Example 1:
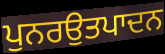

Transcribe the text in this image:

ਪੁਨਰਉਤਪਾਦਨ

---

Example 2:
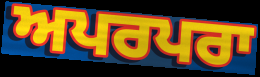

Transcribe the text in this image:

ਅਪਰਪਰਾ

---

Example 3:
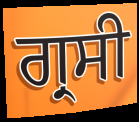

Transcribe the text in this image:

ਗ੍ਰਸੀ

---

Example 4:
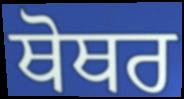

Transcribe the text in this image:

ਥੋਥਰ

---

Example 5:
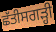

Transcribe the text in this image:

ਛੱਤੀਸਗੜ੍ਹੀ